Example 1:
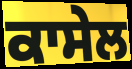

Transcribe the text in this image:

ਕਾਸੇਲ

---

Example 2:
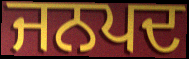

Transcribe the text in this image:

ਜਨਪਦ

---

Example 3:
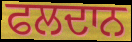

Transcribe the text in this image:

ਫਲਦਾਨ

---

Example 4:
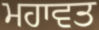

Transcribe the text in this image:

ਮਹਾਵਤ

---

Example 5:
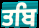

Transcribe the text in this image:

ਤਬਿ